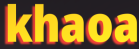
khaoa